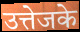
उत्तेजके